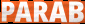
PARAB